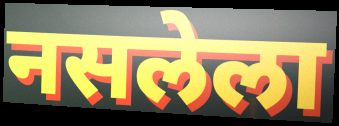
नसलेला